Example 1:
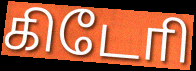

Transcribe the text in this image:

கிடேரி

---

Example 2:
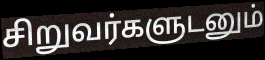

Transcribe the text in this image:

சிறுவர்களுடனும்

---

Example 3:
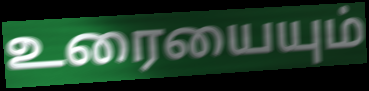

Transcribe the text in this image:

உரையையும்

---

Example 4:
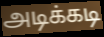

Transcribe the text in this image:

அடிக்கடி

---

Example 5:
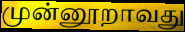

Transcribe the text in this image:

முன்னூறாவது